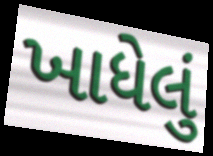
ખાધેલું